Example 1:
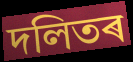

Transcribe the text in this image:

দলিতৰ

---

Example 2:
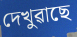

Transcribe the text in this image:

দেখুৱাছে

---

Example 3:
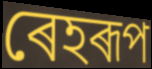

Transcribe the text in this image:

ৰেহৰূপ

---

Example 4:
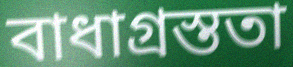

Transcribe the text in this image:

বাধাগ্ৰস্ততা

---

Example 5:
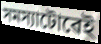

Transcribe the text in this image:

সমস্যাটোৱেই